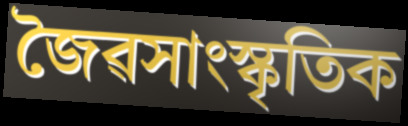
জৈৱসাংস্কৃতিক